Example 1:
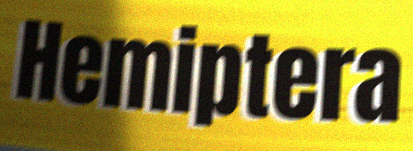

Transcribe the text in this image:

Hemiptera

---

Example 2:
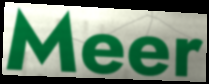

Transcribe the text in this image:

Meer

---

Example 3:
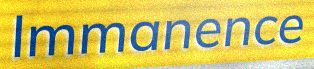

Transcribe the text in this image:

Immanence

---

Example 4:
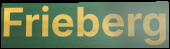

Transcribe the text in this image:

Frieberg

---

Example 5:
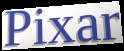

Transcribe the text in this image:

Pixar